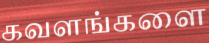
கவளங்களை